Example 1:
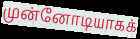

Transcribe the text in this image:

முன்னோடியாகக்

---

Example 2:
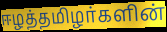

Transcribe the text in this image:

ஈழத்தமிழர்களின்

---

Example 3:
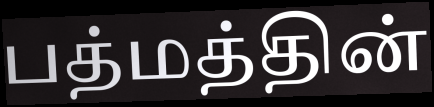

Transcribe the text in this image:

பத்மத்தின்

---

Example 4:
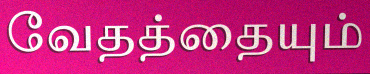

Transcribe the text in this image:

வேதத்தையும்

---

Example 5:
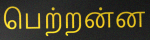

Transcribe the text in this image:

பெற்றன்ன